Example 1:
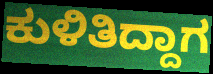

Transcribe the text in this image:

ಕುಳಿತಿದ್ದಾಗ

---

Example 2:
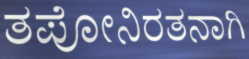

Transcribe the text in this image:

ತಪೋನಿರತನಾಗಿ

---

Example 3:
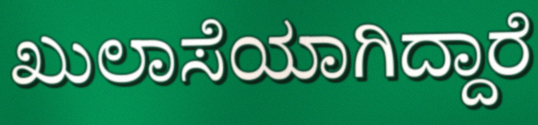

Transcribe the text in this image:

ಖುಲಾಸೆಯಾಗಿದ್ದಾರೆ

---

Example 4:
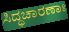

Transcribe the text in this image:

ಸಿದ್ಧಚಾರಣಾಃ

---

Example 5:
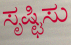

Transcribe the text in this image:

ಸೃಷ್ಟಿಸು